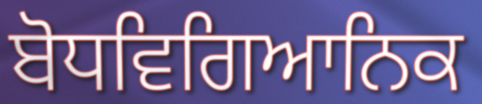
ਬੋਧਵਿਗਿਆਨਿਕ